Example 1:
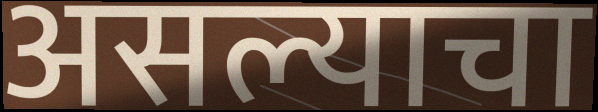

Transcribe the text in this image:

असल्याचा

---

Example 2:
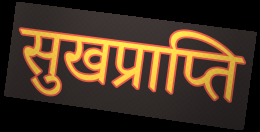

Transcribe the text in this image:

सुखप्राप्ति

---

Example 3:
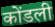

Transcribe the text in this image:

कोंडली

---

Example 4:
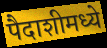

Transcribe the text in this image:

पैदाशीमध्ये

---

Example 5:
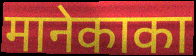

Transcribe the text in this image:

मानेकाका